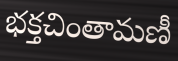
భక్తచింతామణీ